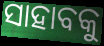
ସାହାବକୁ